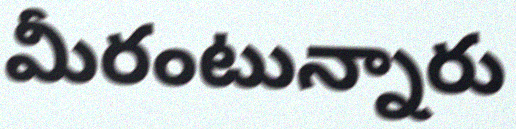
మీరంటున్నారు